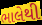
ભાલેથી